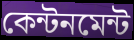
কেন্টনমেন্ট